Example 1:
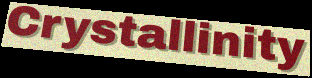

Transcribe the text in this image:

Crystallinity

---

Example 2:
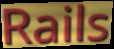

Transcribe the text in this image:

Rails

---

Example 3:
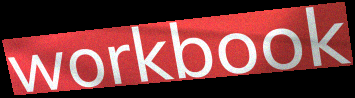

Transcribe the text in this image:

workbook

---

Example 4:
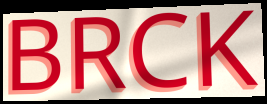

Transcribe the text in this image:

BRCK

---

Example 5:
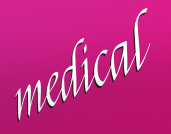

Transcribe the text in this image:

medical